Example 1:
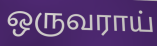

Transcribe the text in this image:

ஒருவராய்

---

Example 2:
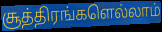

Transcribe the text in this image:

சூத்திரங்களெல்லாம்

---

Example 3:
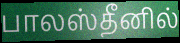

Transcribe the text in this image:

பாலஸ்தீனில்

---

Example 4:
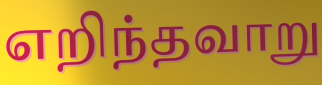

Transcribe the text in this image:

எறிந்தவாறு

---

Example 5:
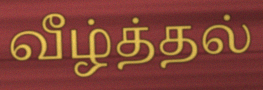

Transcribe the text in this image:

வீழ்த்தல்